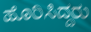
ಹೊರಿಸಿದ್ದರು